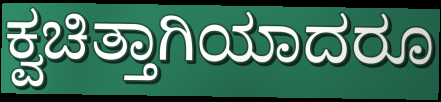
ಕ್ವಚಿತ್ತಾಗಿಯಾದರೂ